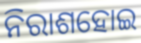
ନିରାଶହୋଇ